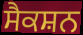
ਸੈਕਸ਼ਨ